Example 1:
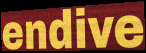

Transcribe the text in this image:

endive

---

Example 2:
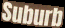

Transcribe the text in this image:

Suburb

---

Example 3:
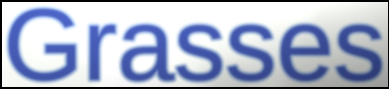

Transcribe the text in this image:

Grasses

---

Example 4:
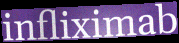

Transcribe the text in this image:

infliximab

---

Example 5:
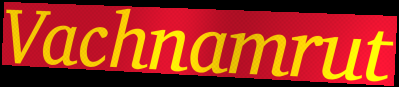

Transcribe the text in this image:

Vachnamrut